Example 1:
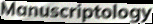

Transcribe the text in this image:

Manuscriptology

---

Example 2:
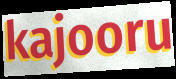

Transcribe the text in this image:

kajooru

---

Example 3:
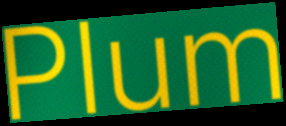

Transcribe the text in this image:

Plum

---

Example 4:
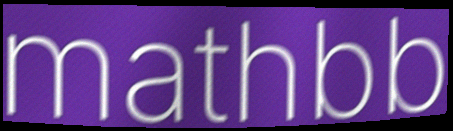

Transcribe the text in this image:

mathbb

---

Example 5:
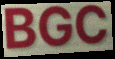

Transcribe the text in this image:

BGC